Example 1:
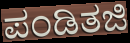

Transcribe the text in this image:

ಪಂಡಿತಜಿ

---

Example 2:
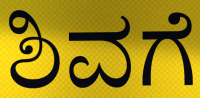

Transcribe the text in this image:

ಶಿವಗೆ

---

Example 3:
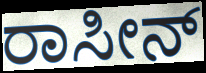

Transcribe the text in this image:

ರಾಸೀನ್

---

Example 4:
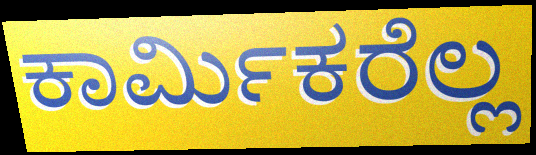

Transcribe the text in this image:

ಕಾರ್ಮಿಕರೆಲ್ಲ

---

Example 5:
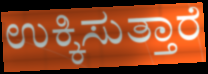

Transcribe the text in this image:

ಉಕ್ಕಿಸುತ್ತಾರೆ